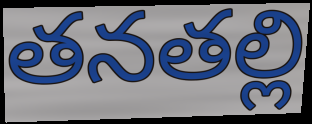
తనతల్లి